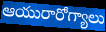
ఆయురారోగ్యాలు